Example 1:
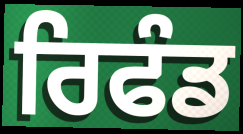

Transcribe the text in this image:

ਰਿਫੰਡ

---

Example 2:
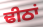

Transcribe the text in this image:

ਢੀਠਾਂ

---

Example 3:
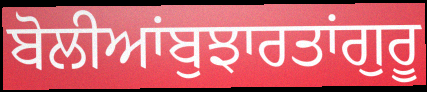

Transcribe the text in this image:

ਬੋਲੀਆਂਬੁਝਾਰਤਾਂਗੁਰੂ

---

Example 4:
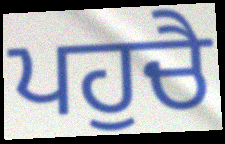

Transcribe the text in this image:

ਪਹੁਚੈ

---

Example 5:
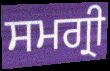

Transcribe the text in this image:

ਸਮਗ੍ਰੀ